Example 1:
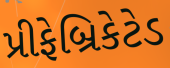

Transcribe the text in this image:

પ્રીફેબ્રિકેટેડ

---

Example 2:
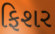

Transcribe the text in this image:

ફિશર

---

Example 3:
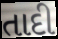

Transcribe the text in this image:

તાદી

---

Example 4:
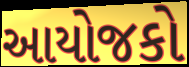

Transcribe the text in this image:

આયોજકો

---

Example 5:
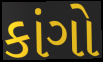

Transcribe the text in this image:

કાંગો